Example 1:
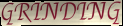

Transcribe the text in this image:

GRINDING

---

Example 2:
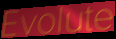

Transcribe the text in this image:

Evolute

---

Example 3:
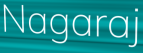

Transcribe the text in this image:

Nagaraj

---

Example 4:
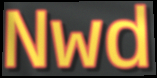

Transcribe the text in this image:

Nwd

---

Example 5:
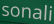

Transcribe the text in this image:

sonali